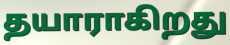
தயாராகிறது